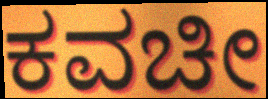
ಕವಚೀ